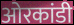
ओरकांडी